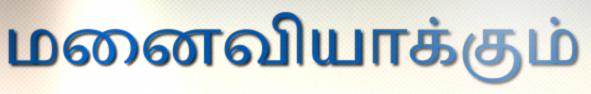
மனைவியாக்கும்